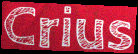
Crius